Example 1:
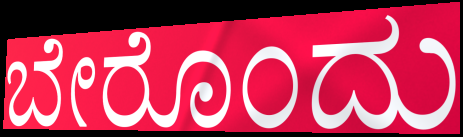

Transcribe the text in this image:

ಬೇರೊಂದು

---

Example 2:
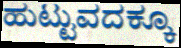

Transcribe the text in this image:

ಹುಟ್ಟುವದಕ್ಕೂ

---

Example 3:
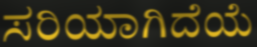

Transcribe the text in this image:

ಸರಿಯಾಗಿದೆಯೆ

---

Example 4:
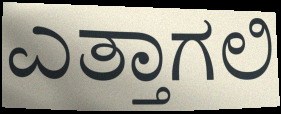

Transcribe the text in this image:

ಎತ್ತಾಗಲಿ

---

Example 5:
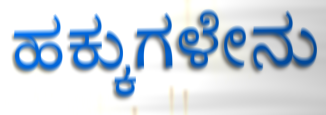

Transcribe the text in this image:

ಹಕ್ಕುಗಳೇನು